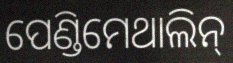
ପେଣ୍ଡିମେଥାଲିନ୍